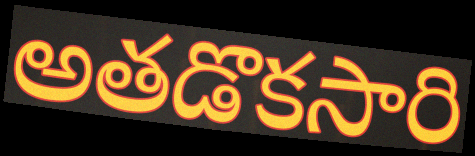
అతడొకసారి